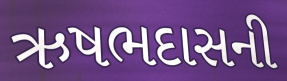
ઋષભદાસની